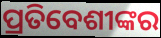
ପ୍ରତିବେଶୀଙ୍କର